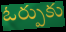
ఓర్పుకు